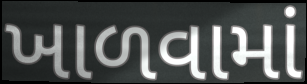
ખાળવામાં